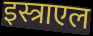
इस्त्राएल